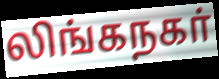
லிங்கநகர்